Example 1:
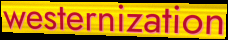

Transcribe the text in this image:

westernization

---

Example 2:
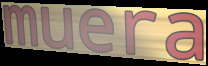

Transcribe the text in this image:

muera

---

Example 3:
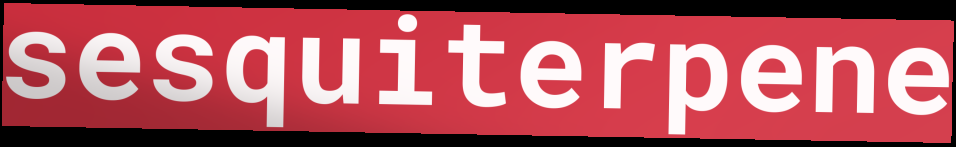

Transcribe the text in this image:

sesquiterpene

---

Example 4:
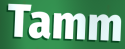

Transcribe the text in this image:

Tamm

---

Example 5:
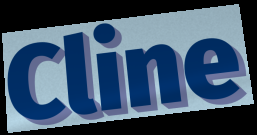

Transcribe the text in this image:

Cline